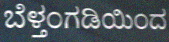
ಬೆಳ್ತಂಗಡಿಯಿಂದ